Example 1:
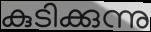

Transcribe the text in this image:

കുടിക്കുന്നു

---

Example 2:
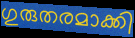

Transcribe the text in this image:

ഗുരുതരമാക്കി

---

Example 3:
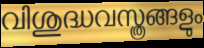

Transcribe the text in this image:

വിശുദ്ധവസ്ത്രങ്ങളും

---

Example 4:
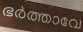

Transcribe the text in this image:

ഭർത്താവേ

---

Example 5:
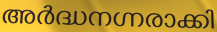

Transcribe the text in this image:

അർദ്ധനഗ്നരാക്കി